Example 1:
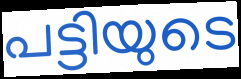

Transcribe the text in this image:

പട്ടിയുടെ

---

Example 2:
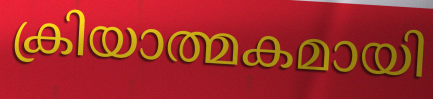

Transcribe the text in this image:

ക്രിയാത്മകമായി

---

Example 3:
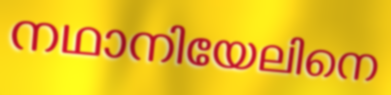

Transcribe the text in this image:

നഥാനിയേലിനെ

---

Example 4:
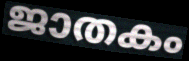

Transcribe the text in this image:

ജാതകം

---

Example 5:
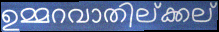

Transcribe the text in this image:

ഉമ്മറവാതില്ക്കല്